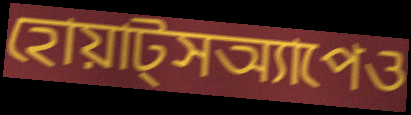
হোয়াট্‌সঅ্যাপেও